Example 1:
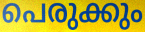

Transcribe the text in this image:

പെരുക്കും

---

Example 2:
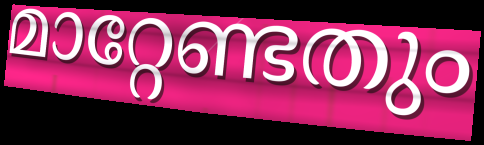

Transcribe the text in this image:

മാറ്റേണ്ടതും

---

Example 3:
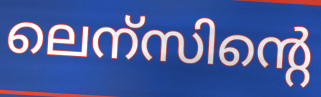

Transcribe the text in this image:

ലെന്സിന്റെ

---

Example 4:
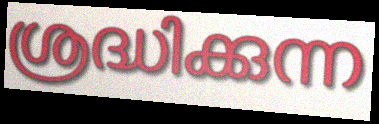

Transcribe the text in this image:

ശ്രദ്ധിക്കുന്ന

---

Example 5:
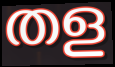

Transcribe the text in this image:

തള